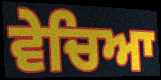
ਵੇਚਿਆ